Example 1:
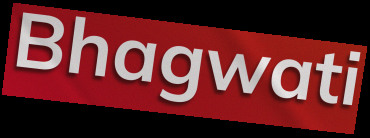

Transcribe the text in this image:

Bhagwati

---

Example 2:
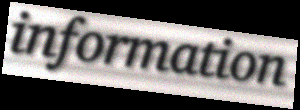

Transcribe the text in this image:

information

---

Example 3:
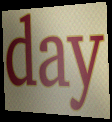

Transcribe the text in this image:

day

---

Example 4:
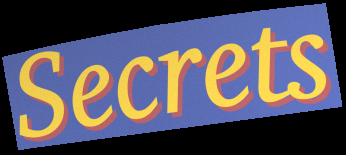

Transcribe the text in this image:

Secrets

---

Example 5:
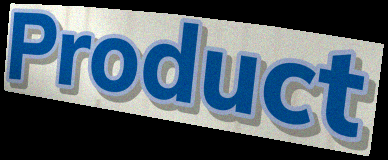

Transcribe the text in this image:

Product